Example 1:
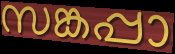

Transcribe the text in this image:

സങ്കപ്പാ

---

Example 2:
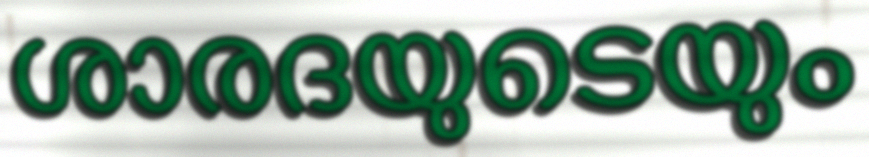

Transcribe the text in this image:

ശാരദയുടെയും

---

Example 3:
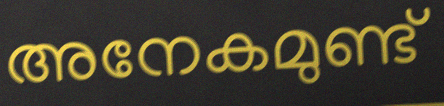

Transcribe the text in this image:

അനേകമുണ്ട്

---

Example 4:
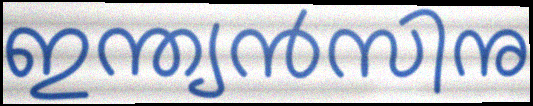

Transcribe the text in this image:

ഇന്ത്യൻസിനു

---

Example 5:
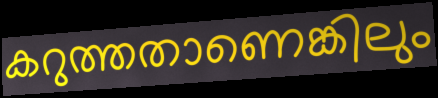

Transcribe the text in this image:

കറുത്തതാണെങ്കിലും